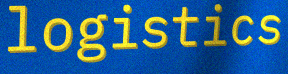
logistics